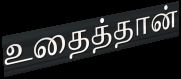
உதைத்தான்